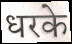
धरके